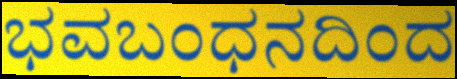
ಭವಬಂಧನದಿಂದ